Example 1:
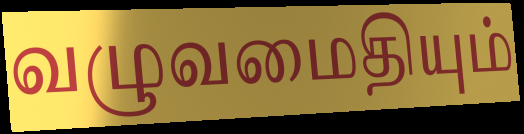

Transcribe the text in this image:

வழுவமைதியும்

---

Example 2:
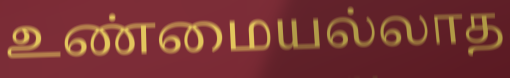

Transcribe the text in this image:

உண்மையல்லாத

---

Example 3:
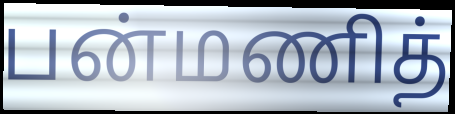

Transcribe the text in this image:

பன்மணித்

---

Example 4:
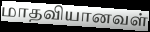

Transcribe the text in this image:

மாதவியானவள்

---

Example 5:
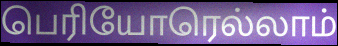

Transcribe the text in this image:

பெரியோரெல்லாம்